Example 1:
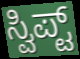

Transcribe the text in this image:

ಸ್ವಿಪ್ಟ್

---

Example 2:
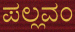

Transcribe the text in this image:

ಪಲ್ಲವಂ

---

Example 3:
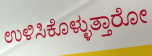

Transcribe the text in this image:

ಉಳಿಸಿಕೊಳ್ಳುತ್ತಾರೋ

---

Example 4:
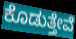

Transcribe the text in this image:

ಕೊಡುತ್ತೇವೆ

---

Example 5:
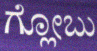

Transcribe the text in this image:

ಗ್ಲೋಬು